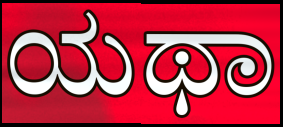
ಯಥಾ